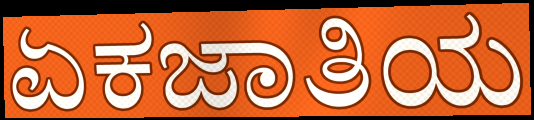
ಏಕಜಾತಿಯ